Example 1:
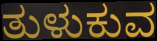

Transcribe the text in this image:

ತುಳುಕುವ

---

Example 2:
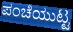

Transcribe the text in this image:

ಪಂಚೆಯುಟ್ಟ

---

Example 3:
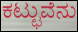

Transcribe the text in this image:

ಕಟ್ಟುವೆನು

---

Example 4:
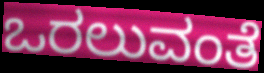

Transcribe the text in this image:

ಒರಲುವಂತೆ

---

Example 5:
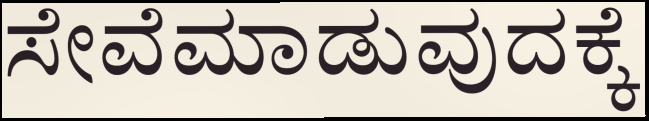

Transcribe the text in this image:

ಸೇವೆಮಾಡುವುದಕ್ಕೆ